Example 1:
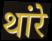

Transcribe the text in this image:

थांरे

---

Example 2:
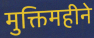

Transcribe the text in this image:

मुक्तिमहीने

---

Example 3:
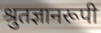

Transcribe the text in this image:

श्रुतज्ञानरूपी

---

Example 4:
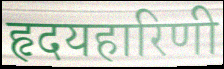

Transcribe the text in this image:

हृदयहारिणी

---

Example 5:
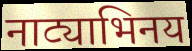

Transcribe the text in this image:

नाट्याभिनय